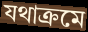
যথাক্ৰমে